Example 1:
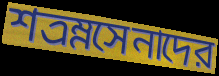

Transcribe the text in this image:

শত্রম্নসেনাদের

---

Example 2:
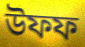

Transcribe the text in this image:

উফফ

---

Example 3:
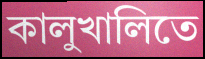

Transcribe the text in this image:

কালুখালিতে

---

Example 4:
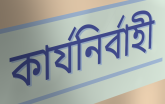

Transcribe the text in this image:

কার্যনির্বাহী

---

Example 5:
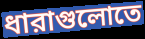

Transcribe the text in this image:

ধারাগুলোতে